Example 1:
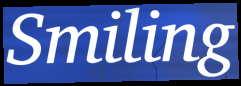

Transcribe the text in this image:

Smiling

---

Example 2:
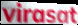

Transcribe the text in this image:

virasat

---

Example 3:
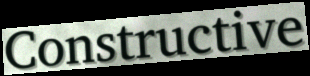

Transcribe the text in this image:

Constructive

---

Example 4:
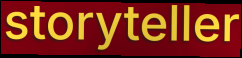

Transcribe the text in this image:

storyteller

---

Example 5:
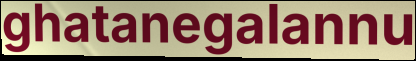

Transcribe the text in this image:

ghatanegalannu